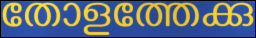
തോളത്തേക്കു